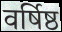
वर्षिष्ठ